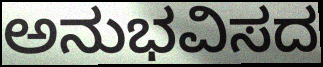
ಅನುಭವಿಸದ